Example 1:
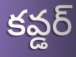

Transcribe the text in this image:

కవ్డర్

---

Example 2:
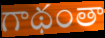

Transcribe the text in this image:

గాథంతా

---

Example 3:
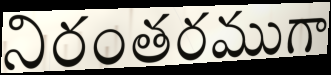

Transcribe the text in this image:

నిరంతరముగా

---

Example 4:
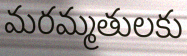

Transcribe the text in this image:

మరమ్మతులకు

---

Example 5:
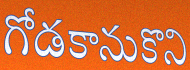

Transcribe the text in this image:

గోడకానుకొని